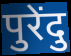
पुरेंदु